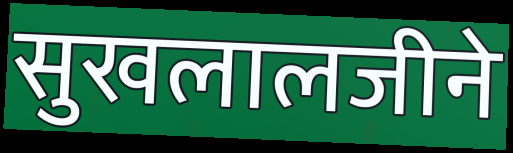
सुखलालजीने